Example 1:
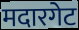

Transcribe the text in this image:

मदारगेट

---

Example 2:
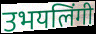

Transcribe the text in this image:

उभयलिंगी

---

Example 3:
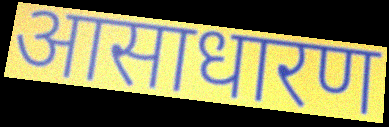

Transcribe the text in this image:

आसाधारण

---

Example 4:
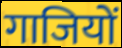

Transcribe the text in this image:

गाजियों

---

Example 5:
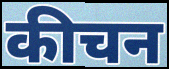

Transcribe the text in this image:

कीचन